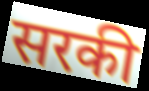
सरकी